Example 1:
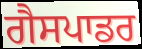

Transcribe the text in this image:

ਗੈਸਪਾਡਰ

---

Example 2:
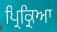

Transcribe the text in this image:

ਪ੍ਰਿਕ੍ਰਿਆ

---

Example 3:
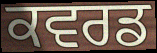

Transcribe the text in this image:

ਕਵਰਡ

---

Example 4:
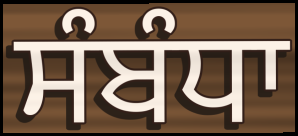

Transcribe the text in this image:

ਸੰਬੰਧਾ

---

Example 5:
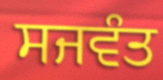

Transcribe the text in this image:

ਸਜਵੰਤ